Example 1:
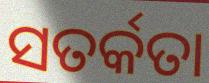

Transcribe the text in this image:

ସତର୍କତା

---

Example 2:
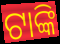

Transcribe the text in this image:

ଟାଙ୍କି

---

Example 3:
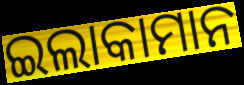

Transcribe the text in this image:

ଇଲାକାମାନ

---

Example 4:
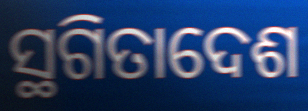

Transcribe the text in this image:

ସ୍ଥଗିତାଦେଶ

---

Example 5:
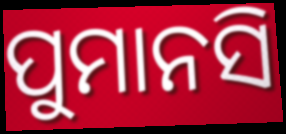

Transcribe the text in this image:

ପୁମାନସି